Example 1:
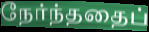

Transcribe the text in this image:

நேர்ந்ததைப்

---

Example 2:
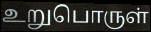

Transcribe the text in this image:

உறுபொருள்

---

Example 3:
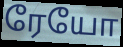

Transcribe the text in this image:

ரேயோ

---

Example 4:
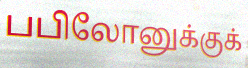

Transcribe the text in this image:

பபிலோனுக்குக்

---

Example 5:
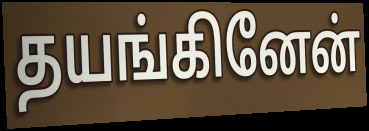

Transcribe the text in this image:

தயங்கினேன்